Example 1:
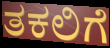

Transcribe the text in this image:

ತಕಲಿಗೆ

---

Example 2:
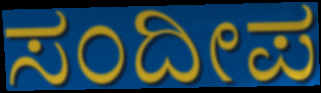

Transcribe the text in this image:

ಸಂದೀಪ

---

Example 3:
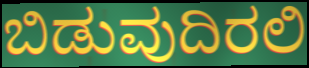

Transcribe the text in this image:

ಬಿಡುವುದಿರಲಿ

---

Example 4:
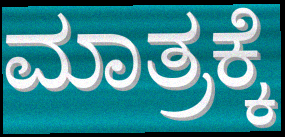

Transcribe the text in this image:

ಮಾತ್ರಕ್ಕೆ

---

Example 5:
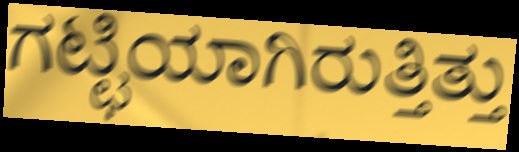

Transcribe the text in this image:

ಗಟ್ಟಿಯಾಗಿರುತ್ತಿತ್ತು